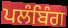
ਪਲੰਬਿੰਗ